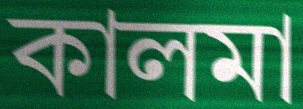
কালমা